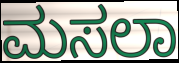
ಮಸಲಾ